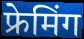
फ्रेमिंग